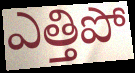
ఎత్తిపో